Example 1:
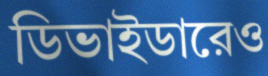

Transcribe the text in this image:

ডিভাইডারেও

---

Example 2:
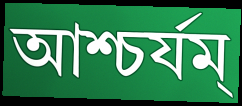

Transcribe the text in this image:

আশ্চর্যম্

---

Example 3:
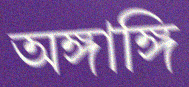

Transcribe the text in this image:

অঙ্গাঙ্গি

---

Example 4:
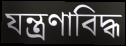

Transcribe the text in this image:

যন্ত্রণাবিদ্ধ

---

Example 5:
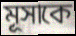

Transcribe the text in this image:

মূসাকে